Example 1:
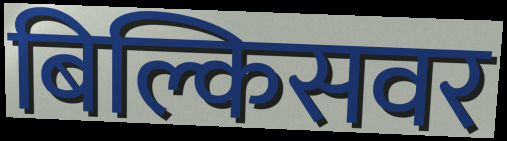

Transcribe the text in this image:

बिल्किसवर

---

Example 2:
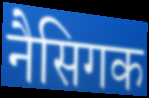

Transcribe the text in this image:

नैसिगक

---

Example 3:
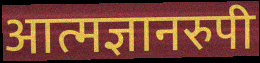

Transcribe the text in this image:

आत्मज्ञानरुपी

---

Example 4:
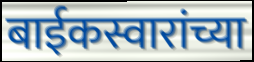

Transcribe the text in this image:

बाईकस्वारांच्या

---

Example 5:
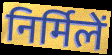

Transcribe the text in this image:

निर्मिलें